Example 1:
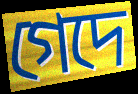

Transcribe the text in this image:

গেদে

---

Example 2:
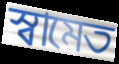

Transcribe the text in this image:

স্বামেত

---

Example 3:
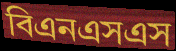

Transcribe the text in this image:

বিএনএসএস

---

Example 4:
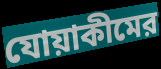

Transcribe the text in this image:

যোয়াকীমের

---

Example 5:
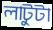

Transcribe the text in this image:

লাটুটা